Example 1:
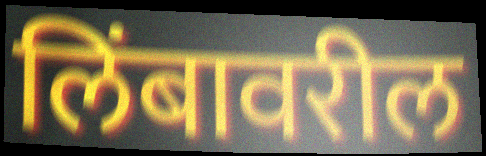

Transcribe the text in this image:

लिंबावरील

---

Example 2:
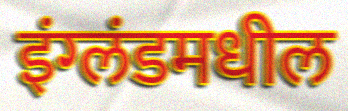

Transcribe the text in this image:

इंग्‍लंडमधील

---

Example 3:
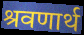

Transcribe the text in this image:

श्रवणार्थ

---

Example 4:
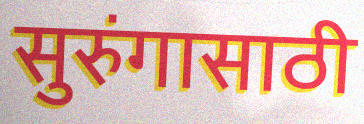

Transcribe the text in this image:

सुरुंगासाठी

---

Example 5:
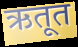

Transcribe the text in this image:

ऋतूत